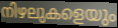
നിഴലുകളെയും